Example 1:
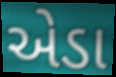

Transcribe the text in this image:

એડા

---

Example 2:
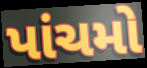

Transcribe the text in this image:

પાંચમો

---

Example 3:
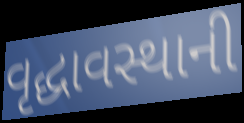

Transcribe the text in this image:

વૃદ્ધાવસ્થાની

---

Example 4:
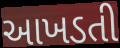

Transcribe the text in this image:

આખડતી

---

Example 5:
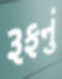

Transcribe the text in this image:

રૂફનું